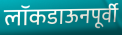
लॉकडाऊनपूर्वी